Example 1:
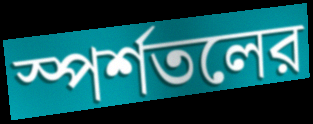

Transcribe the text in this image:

স্পর্শতলের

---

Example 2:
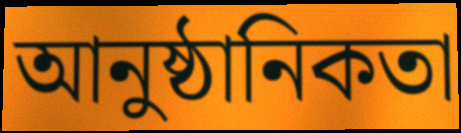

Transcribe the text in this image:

আনুষ্ঠানিকতা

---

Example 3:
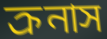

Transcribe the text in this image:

ক্রনাস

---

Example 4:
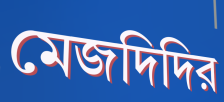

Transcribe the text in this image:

মেজদিদির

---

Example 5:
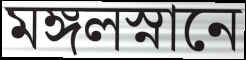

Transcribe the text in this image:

মঙ্গলস্নানে